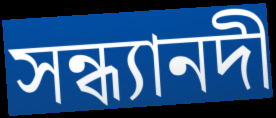
সন্ধ্যানদী